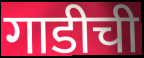
गाडीची